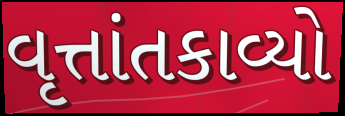
વૃત્તાંતકાવ્યો